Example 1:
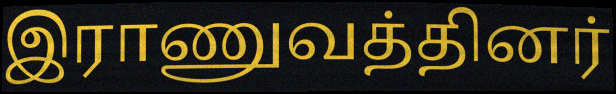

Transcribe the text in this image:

இராணுவத்தினர்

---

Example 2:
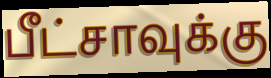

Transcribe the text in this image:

பீட்சாவுக்கு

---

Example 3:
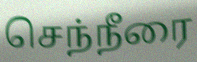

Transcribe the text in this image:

செந்நீரை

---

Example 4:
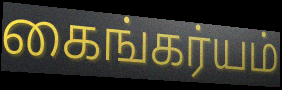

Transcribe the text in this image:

கைங்கர்யம்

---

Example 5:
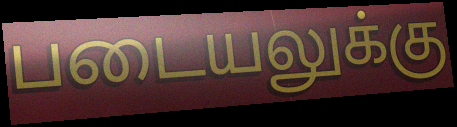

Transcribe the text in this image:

படையலுக்கு